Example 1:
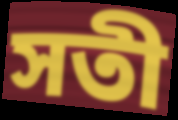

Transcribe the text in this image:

সতী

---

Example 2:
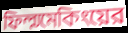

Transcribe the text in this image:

ফিল্মমেকিংয়ের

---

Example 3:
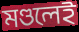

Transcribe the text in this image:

মণ্ডলেই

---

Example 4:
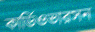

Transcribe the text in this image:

কার্ডিওভারসন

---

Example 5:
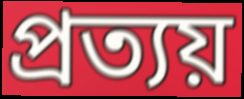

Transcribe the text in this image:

প্রত্যয়